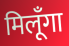
मिलूँगा